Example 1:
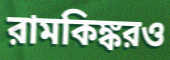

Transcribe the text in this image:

রামকিঙ্করও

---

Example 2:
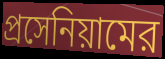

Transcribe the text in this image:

প্রসেনিয়ামের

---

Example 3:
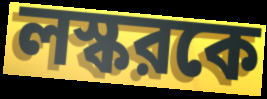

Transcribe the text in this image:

লস্করকে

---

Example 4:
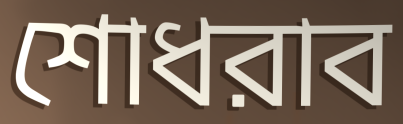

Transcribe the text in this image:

শোধরাব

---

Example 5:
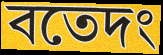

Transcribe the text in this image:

বতেদং